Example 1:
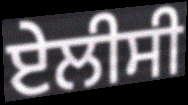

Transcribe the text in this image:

ਏਲੀਸੀ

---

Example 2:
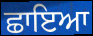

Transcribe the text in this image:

ਛਾਇਆ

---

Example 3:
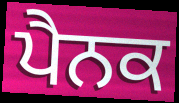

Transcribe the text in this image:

ਪੈਨਕ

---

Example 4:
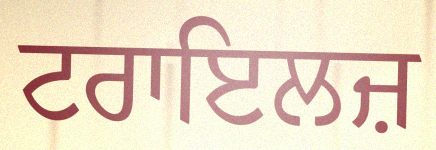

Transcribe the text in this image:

ਟਰਾਇਲਜ਼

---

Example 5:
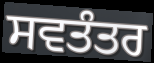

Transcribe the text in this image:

ਸਵਤੰਤਰ